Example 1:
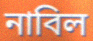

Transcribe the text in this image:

নাবিল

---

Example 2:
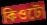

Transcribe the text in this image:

কিওটো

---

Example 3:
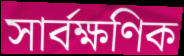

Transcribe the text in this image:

সার্বক্ষণিক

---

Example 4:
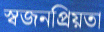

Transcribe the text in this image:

স্বজনপ্রিয়তা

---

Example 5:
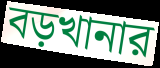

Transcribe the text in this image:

বড়খানার